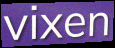
vixen